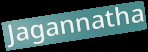
Jagannatha